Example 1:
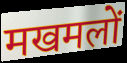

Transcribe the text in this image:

मखमलों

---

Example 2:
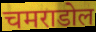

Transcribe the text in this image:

चमराडोल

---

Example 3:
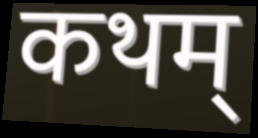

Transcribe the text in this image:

कथम्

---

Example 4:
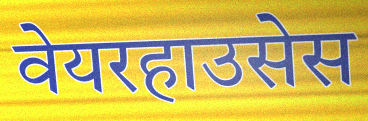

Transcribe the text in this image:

वेयरहाउसेस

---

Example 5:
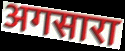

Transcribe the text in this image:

अगसारा